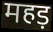
महड़